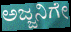
ಅಜ್ಜನಿಗೇ